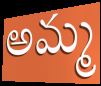
అమ్మ